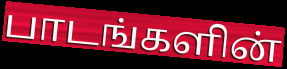
பாடங்களின்